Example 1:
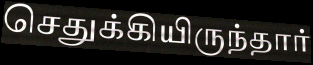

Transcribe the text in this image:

செதுக்கியிருந்தார்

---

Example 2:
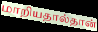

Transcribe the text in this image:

மாறியதால்தான்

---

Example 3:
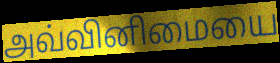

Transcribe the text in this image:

அவ்வினிமையை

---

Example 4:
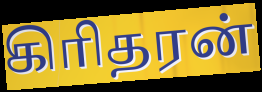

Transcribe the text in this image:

கிரிதரன்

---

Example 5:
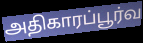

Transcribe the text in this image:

அதிகாரப்பூர்வ